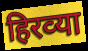
हिरव्‍या